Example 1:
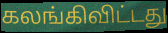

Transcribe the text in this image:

கலங்கிவிட்டது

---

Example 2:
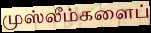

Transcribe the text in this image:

முஸ்லீம்களைப்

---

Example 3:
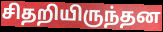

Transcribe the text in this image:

சிதறியிருந்தன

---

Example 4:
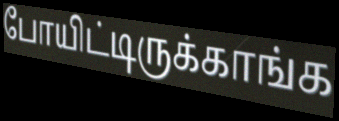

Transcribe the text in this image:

போயிட்டிருக்காங்க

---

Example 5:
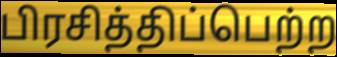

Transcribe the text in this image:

பிரசித்திப்பெற்ற